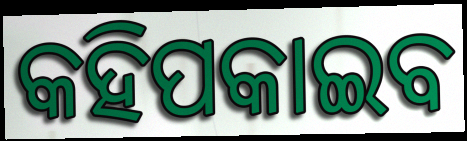
କହିପକାଇବ